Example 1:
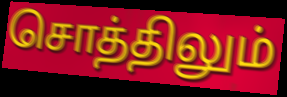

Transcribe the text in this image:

சொத்திலும்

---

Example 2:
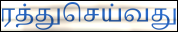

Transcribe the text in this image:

ரத்துசெய்வது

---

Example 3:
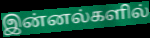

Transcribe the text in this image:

இன்னல்களில்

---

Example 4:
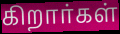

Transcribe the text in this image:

கிறார்கள்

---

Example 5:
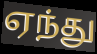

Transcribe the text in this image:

ஏந்து